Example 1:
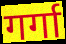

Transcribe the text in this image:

गर्गा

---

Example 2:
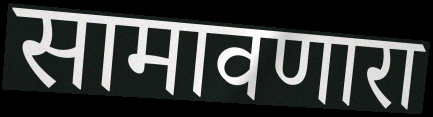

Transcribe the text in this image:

सामावणारा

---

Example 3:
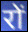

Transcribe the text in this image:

रों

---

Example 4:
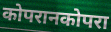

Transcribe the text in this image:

कोपरानकोपरा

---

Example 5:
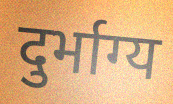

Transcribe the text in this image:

दुर्भाग्य